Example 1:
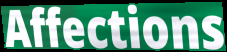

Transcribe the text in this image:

Affections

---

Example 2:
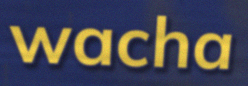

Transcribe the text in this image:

wacha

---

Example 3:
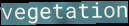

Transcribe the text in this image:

vegetation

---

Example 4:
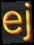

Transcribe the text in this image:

ej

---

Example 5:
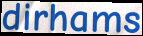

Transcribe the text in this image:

dirhams